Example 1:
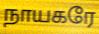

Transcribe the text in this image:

நாயகரே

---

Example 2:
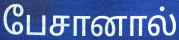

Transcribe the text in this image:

பேசானால்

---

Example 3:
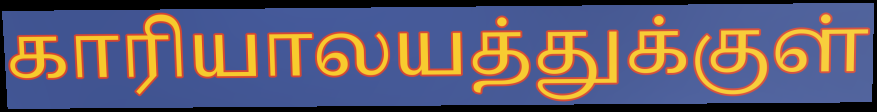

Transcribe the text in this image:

காரியாலயத்துக்குள்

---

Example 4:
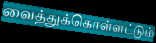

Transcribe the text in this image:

வைத்துக்கொள்ளட்டும்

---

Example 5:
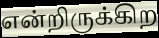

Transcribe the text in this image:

என்றிருக்கிற